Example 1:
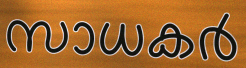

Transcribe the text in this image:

സാധകർ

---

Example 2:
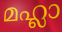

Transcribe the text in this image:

മഹ്ലാ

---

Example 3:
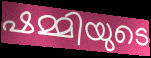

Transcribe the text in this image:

ഷമ്മിയുടെ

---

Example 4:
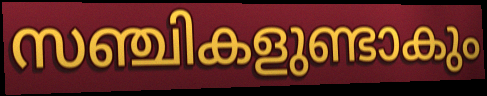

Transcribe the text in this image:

സഞ്ചികളുണ്ടാകും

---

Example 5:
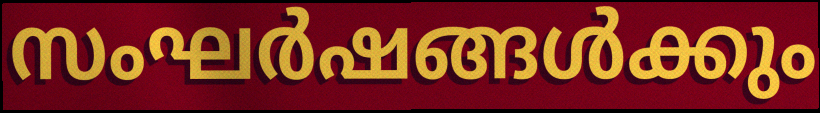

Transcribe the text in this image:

സംഘർഷങ്ങൾക്കും